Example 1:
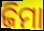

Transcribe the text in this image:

ଜିମା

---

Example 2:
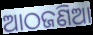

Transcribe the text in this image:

ଆଠଜଣିଆ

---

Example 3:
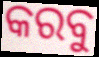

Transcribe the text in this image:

କରବୁ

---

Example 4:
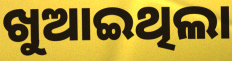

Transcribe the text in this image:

ଖୁଆଇଥିଲା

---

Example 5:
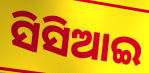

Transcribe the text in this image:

ସିସିଆଇ